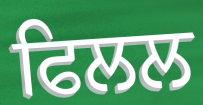
ਫਿਲਲ